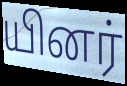
யினர்